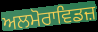
ਅਲਮੋਰਾਵਿਡਜ਼